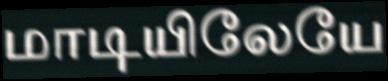
மாடியிலேயே